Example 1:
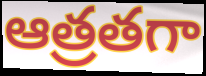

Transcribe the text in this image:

ఆత్రతగా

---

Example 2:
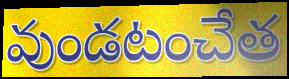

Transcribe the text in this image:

వుండటంచేత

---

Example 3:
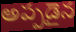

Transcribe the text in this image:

అప్పడైన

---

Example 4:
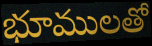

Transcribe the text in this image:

భూములతో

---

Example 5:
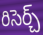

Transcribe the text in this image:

రిసెర్చ్